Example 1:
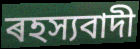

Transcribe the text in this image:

ৰহস্যবাদী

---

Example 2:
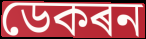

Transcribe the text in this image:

ডেকৰন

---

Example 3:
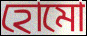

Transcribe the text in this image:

হোমো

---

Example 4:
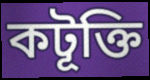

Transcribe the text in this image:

কটূক্তি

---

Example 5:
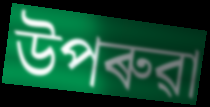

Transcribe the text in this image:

উপৰুৱা